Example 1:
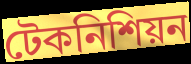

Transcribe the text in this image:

টেকনিশিয়ন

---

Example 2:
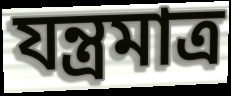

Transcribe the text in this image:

যন্ত্রমাত্র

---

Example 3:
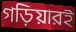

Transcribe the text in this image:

গড়িয়ারই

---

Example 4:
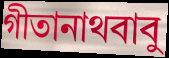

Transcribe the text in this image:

গীতানাথবাবু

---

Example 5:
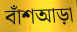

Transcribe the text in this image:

বাঁশআড়া